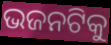
ଭଜନଟିକୁ